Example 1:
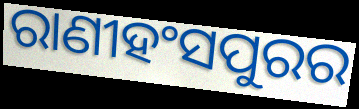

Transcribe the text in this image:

ରାଣୀହଂସପୁରର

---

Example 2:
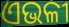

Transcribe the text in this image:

ଏଭଳୀ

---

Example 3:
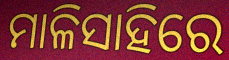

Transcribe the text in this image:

ମାଳିସାହିରେ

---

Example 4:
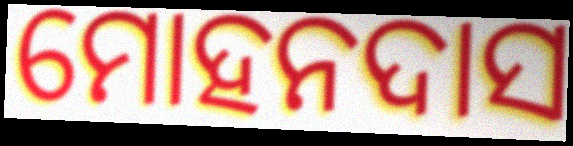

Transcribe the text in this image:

ମୋହନଦାସ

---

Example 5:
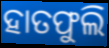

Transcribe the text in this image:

ହାତଫୁଲି